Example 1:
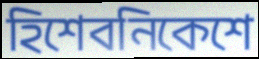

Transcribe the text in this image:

হিশেবনিকেশে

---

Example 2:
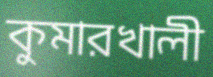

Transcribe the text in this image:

কুমারখালী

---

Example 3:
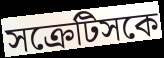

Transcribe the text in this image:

সক্রেটিসকে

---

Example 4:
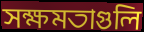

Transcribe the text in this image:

সক্ষমতাগুলি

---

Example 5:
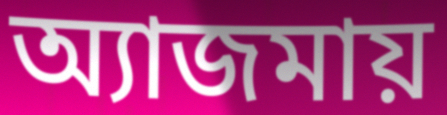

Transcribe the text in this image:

অ্যাজমায়